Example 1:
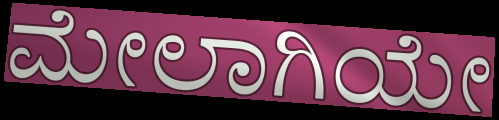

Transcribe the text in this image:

ಮೇಲಾಗಿಯೇ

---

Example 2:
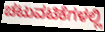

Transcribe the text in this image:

ಚಟುವಟಿಕೆಗಳಲ್ಲಿ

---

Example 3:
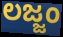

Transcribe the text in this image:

ಲಜ್ಜಂ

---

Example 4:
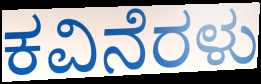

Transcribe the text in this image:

ಕವಿನೆರಳು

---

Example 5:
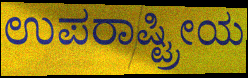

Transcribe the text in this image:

ಉಪರಾಷ್ಟ್ರೀಯ